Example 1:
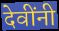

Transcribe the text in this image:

देवींनी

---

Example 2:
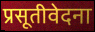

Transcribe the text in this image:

प्रसूतीवेदना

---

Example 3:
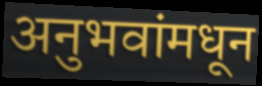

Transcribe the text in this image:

अनुभवांमधून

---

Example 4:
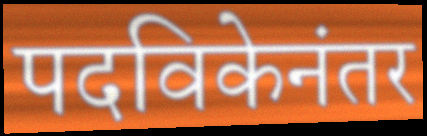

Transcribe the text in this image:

पदविकेनंतर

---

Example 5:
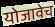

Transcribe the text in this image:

योजावेच